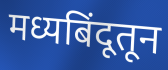
मध्यबिंदूतून